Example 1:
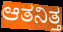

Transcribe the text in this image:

ಆತನಿತ್ತ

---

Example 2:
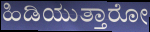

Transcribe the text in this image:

ಹಿಡಿಯುತ್ತಾರೋ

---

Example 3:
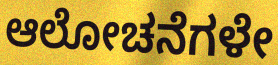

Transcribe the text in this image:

ಆಲೋಚನೆಗಳೇ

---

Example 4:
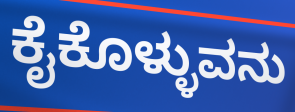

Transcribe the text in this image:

ಕೈಕೊಳ್ಳುವನು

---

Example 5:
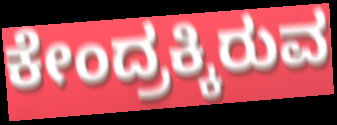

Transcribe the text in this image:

ಕೇಂದ್ರಕ್ಕಿರುವ